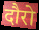
दौरो